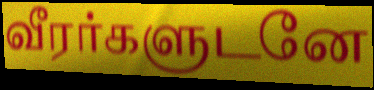
வீரர்களுடனே